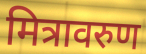
मित्रावरुण